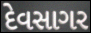
દેવસાગર